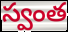
స్వంత